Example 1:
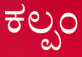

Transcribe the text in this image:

ಕಲ್ಪಂ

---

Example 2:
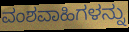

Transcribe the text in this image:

ವಂಶವಾಹಿಗಳನ್ನು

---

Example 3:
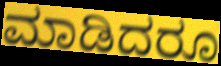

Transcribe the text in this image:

ಮಾಡಿದರೂ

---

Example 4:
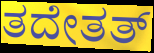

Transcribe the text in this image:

ತದೇತತ್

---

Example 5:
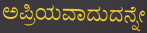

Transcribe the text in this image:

ಅಪ್ರಿಯವಾದುದನ್ನೇ